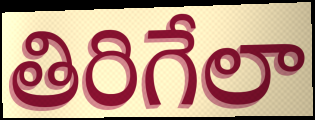
తిరిగేలా